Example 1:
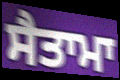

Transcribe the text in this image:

ਸੈਤਾਮਾ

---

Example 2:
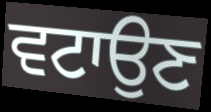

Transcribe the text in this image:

ਵਟਾਉਣ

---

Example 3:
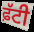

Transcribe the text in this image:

ਫ਼ੱਟੀ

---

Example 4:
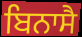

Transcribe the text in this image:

ਬਿਨਾਸੈ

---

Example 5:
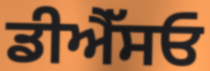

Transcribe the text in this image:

ਡੀਐੱਸਓ